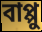
বাপ্পু